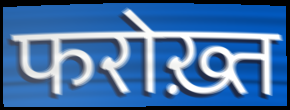
फरोख़्त